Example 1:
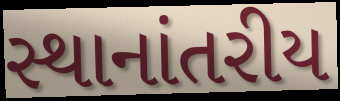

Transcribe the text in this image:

સ્થાનાંતરીય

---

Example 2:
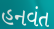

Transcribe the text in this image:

હનવંત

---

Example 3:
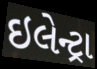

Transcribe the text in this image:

ઇલેન્ટ્રા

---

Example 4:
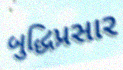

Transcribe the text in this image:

બુદ્ધિપ્રસાર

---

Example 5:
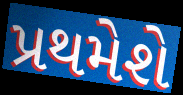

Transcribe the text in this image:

પ્રથમેશે